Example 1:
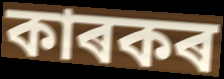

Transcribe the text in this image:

কাৰকৰ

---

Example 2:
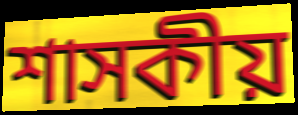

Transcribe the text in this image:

শাসকীয়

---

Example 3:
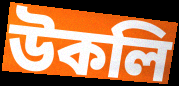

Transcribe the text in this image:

উকলি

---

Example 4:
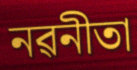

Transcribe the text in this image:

নৱনীতা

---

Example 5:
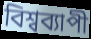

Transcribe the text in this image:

বিশ্বব্যাপী